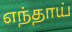
எந்தாய்